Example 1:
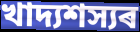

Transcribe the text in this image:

খাদ্যশস্যৰ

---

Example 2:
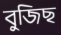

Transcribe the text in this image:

বুজিছ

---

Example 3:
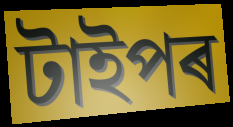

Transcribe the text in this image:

টাইপৰ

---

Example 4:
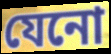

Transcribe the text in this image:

যেনো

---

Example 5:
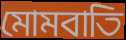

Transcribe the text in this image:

মোমবাতি